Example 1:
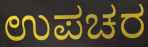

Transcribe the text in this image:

ಉಪಚರ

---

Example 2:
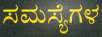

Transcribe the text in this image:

ಸಮಸ್ಯೆಗಳ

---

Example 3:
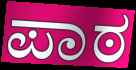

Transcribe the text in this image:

ಪಾಠ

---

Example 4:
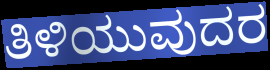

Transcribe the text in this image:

ತಿಳಿಯುವುದರ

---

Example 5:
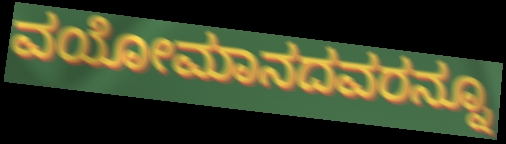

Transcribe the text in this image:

ವಯೋಮಾನದವರನ್ನೂ